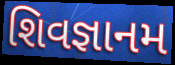
શિવજ્ઞાનમ